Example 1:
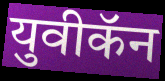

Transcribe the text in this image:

युवीकॅन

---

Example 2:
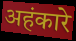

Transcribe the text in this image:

अहंकारे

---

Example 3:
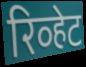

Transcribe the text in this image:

रिव्हेट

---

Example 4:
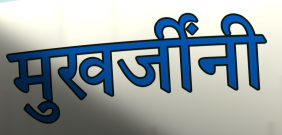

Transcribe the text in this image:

मुखर्जींनी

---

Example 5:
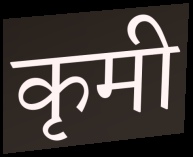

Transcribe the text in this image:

कृमी